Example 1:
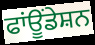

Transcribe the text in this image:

ਫਾਂਊਂਡੇਸ਼ਨ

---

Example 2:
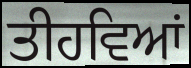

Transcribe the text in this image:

ਤੀਹਵਿਆਂ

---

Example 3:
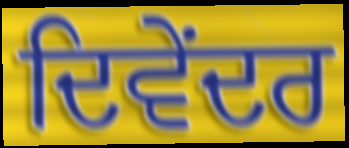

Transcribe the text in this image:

ਦਿਵੇਂਦਰ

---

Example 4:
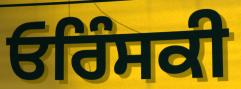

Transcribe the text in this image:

ਓਰਿੰਸਕੀ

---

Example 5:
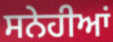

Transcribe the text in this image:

ਸਨੇਹੀਆਂ